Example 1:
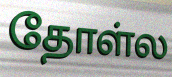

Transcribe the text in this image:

தோள்ல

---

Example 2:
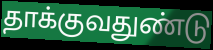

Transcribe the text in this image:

தாக்குவதுண்டு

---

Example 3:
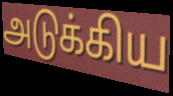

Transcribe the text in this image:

அடுக்கிய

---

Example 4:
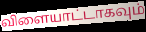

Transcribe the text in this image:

விளையாட்டாகவும்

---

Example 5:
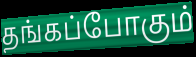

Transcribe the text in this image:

தங்கப்போகும்